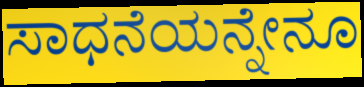
ಸಾಧನೆಯನ್ನೇನೂ